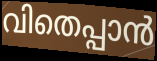
വിതെപ്പാൻ